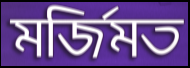
মর্জিমত